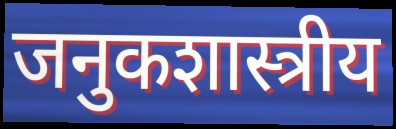
जनुकशास्त्रीय